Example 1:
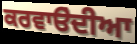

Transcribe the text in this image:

ਕਰਵਾੳਂਦੀਆ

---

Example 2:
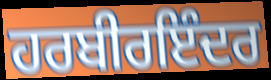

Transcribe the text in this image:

ਹਰਬੀਰਇੰਦਰ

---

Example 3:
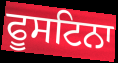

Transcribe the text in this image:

ਫੂਸਟਿਨਾ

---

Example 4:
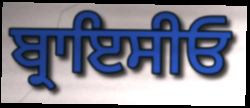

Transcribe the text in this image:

ਬ੍ਰਾਇਸੀਓ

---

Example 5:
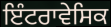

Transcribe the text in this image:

ਇੰਟਰਾਵੇਸਿਕ